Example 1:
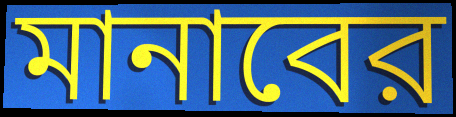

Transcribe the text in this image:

মানাবের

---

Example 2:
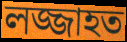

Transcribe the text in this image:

লজ্জাহত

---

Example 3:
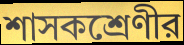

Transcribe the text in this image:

শাসকশ্রেণীর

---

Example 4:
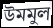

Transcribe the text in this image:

উমমুল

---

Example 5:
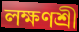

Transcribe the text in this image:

লক্ষণশ্রী